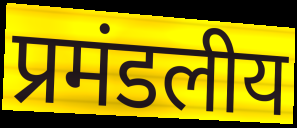
प्रमंडलीय